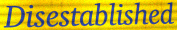
Disestablished